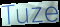
Tuze